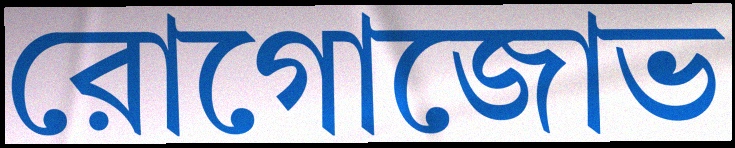
রোগোজোভ